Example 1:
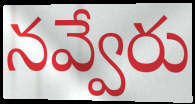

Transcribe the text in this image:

నవ్వేరు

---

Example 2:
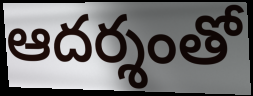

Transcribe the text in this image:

ఆదర్శంతో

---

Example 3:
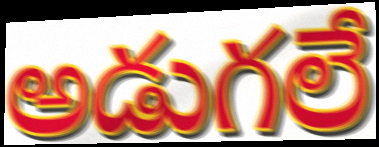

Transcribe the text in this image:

అడుగలే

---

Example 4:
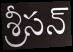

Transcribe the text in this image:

శ్రీసన్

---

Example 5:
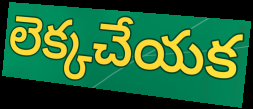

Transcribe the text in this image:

లెక్కచేయక